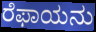
ರೆಫಾಯನು